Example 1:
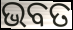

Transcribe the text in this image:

ଭବତ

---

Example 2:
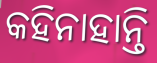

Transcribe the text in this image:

କହିନାହାନ୍ତି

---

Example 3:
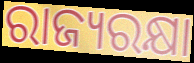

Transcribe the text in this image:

ରାଜ୍ୟରକ୍ଷା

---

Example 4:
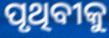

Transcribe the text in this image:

ପୃଥିବୀକୁ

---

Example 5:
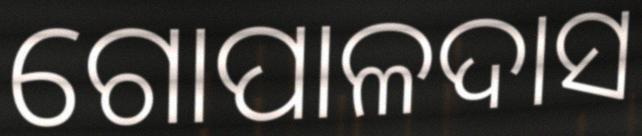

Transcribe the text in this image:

ଗୋପାଳଦାସ